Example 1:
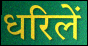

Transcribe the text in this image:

धरिलें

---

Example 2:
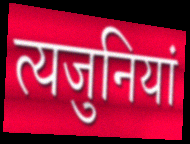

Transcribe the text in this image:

त्यजुनियां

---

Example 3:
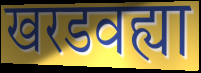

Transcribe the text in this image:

खरडवह्या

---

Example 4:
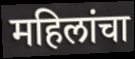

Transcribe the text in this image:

महिलांचा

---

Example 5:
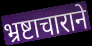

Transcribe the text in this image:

भ्रष्टाचाराने